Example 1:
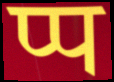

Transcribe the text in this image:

प्प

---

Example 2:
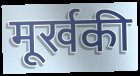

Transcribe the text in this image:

मूर्खकी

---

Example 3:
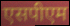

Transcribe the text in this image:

एसपीएम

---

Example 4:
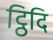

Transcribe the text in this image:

ट्ठिदि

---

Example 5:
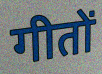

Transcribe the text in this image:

गीतों